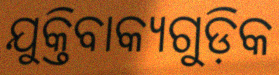
ଯୁକ୍ତିବାକ୍ୟଗୁଡ଼ିକ